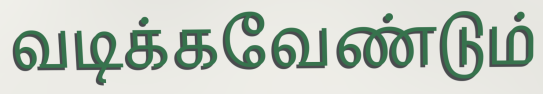
வடிக்கவேண்டும்